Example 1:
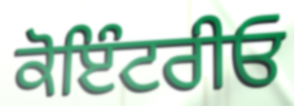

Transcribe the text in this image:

ਕੋਇੰਟਰੀਓ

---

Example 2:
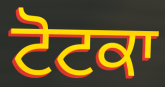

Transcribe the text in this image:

ਟੋਟਕਾ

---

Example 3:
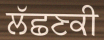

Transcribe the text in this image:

ਲੱਛਣਕੀ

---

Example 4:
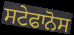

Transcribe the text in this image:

ਸਟੇਫਾਨੋਸ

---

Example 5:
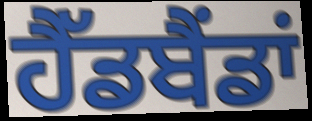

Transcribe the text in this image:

ਹੈੱਡਬੈਂਡਾਂ